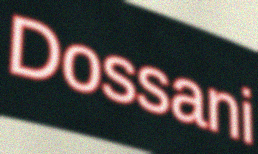
Dossani